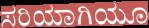
ಸರಿಯಾಗಿಯೂ